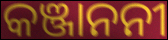
କଞ୍ଜାନନୀ